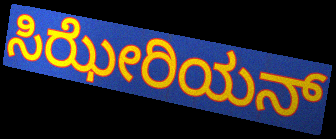
ಸಿಝೇರಿಯನ್